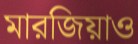
মারজিয়াও